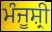
ਮੰਜੂਸ਼੍ਰੀ